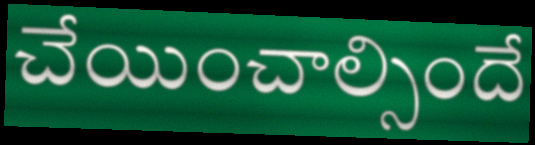
చేయించాల్సిందే